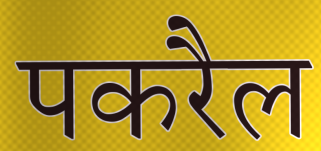
पकरैल